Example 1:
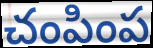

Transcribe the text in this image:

చంపింప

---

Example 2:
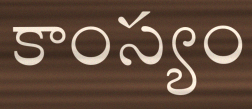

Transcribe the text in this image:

కాంస్యం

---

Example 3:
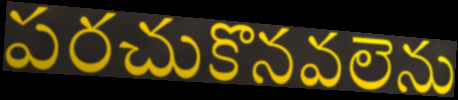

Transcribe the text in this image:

పరచుకొనవలెను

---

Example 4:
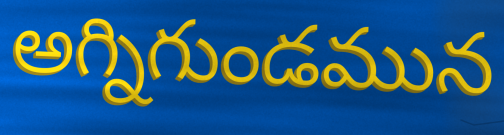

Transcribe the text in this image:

అగ్నిగుండమున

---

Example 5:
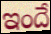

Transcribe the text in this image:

ఇందే